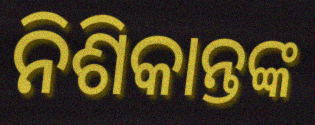
ନିଶିକାନ୍ତଙ୍କ